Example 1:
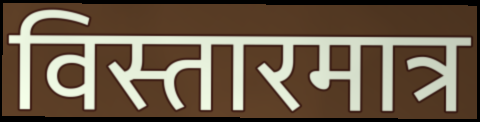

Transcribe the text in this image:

विस्तारमात्र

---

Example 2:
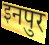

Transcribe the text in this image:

इनपुर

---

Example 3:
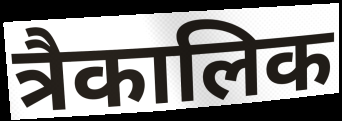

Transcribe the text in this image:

त्रैकालिक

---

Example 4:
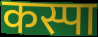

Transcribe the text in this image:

कस्पा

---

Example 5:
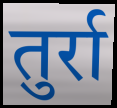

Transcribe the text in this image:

तुर्रा